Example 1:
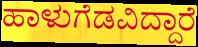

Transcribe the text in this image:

ಹಾಳುಗೆಡವಿದ್ದಾರೆ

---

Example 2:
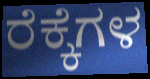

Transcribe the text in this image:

ರೆಕ್ಕೆಗಳ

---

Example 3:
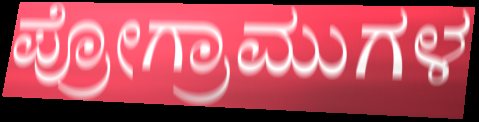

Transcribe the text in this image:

ಪ್ರೋಗ್ರಾಮುಗಳ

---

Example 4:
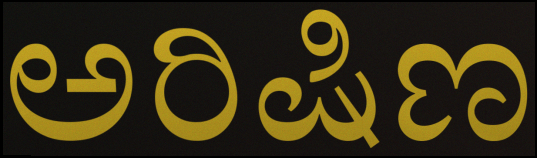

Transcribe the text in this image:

ಅರಿಷಿಣ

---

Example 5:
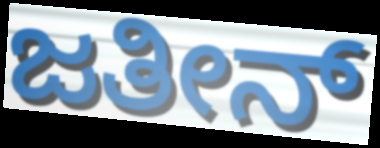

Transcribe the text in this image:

ಜತೀನ್